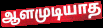
ஆளமுடியாத